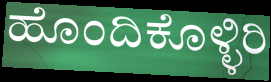
ಹೊಂದಿಕೊಳ್ಳಿರಿ